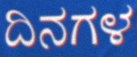
ದಿನಗಳ